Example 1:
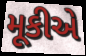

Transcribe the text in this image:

મૂકીએ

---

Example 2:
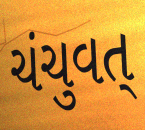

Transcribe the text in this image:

ચંચુવત્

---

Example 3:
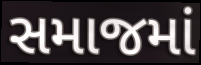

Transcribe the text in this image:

સમાજમાં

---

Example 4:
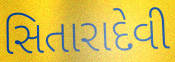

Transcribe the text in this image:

સિતારાદેવી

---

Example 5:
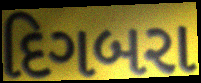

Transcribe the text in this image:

દિગબરા